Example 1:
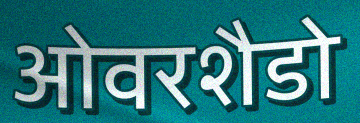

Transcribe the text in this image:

ओवरशैडो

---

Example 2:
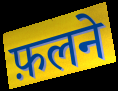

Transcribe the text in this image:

फ़लने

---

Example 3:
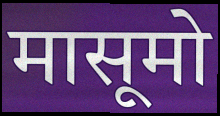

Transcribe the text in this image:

मासूमो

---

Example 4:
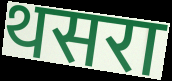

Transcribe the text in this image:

थसरा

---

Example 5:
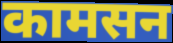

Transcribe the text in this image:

कामसन